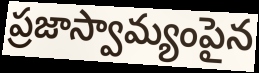
ప్రజాస్వామ్యంపైన